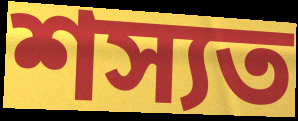
শস্যত